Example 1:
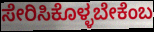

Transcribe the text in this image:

ಸೇರಿಸಿಕೊಳ್ಳಬೇಕೆಂಬ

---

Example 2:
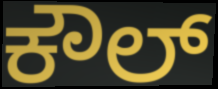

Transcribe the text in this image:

ಕೌಲ್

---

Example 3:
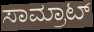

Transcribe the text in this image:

ಸಾಮ್ರಾಟ್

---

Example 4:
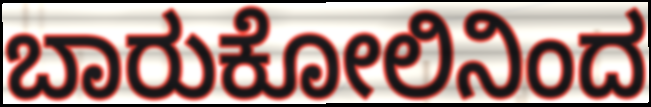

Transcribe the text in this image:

ಬಾರುಕೋಲಿನಿಂದ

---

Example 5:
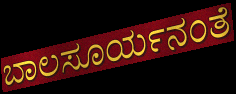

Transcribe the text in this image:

ಬಾಲಸೂರ್ಯನಂತೆ